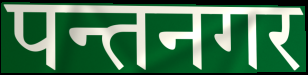
पन्तनगर